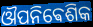
ଔପନିଵେଶିକ